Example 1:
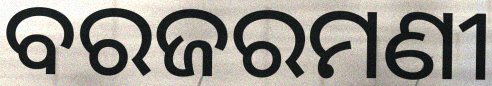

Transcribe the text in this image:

ବରଜରମଣୀ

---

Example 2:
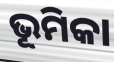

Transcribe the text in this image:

ଭୂମିକା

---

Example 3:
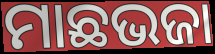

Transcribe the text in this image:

ମାଛଭଜା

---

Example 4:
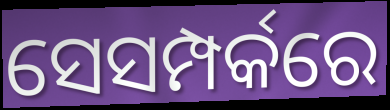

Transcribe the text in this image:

ସେସମ୍ପର୍କରେ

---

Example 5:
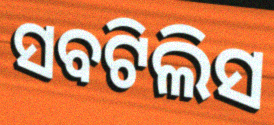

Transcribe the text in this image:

ସବଟିଲିସ